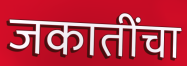
जकातींचा